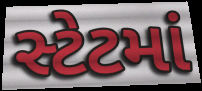
સ્ટેટમાં